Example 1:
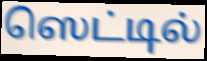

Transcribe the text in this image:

ஸெட்டில்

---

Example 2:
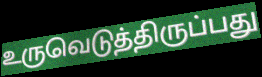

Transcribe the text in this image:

உருவெடுத்திருப்பது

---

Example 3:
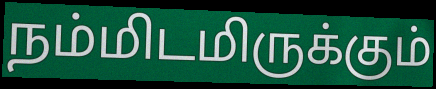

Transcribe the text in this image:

நம்மிடமிருக்கும்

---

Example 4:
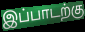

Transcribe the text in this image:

இப்பாடற்கு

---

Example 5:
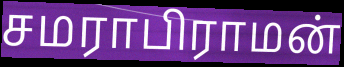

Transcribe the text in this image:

சமராபிராமன்